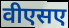
वीएसए